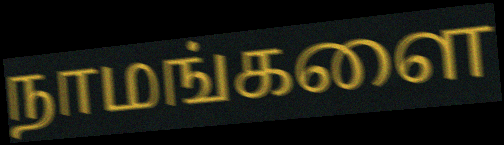
நாமங்களை